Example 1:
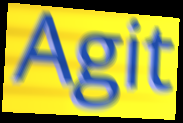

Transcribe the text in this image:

Agit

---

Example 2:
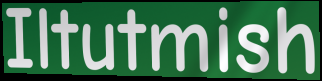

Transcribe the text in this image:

Iltutmish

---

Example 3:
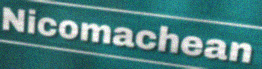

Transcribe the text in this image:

Nicomachean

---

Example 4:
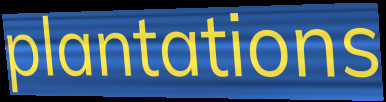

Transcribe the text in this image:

plantations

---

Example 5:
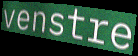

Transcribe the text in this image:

venstre